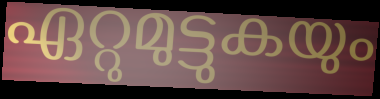
ഏറ്റുമുട്ടുകയും